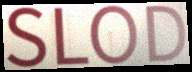
SLOD